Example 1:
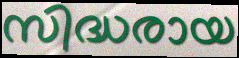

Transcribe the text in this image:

സിദ്ധരായ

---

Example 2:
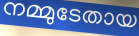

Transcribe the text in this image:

നമ്മുടേതായ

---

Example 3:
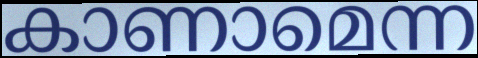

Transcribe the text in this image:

കാണാമെന്ന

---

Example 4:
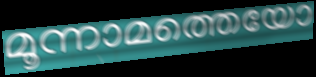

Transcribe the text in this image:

മൂന്നാമത്തെയോ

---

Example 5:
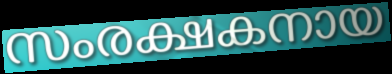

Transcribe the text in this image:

സംരക്ഷകനായ